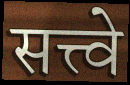
सत्त्वे